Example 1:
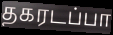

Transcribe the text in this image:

தகரடப்பா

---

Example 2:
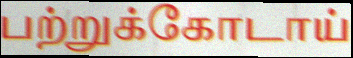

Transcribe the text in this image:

பற்றுக்கோடாய்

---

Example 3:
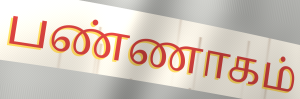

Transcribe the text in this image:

பண்ணாகம்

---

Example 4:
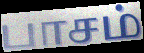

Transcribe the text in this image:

பாசம்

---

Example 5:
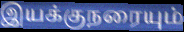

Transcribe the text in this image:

இயக்குநரையும்